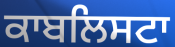
ਕਾਬਲਿਸਟਾ